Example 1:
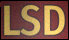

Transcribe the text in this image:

LSD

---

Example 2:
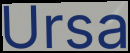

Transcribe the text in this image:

Ursa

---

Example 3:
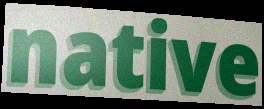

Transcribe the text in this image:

native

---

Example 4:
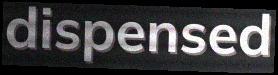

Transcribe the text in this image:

dispensed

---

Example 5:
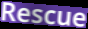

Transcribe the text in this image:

Rescue